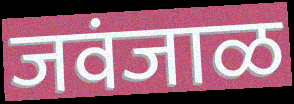
जवंजाळ